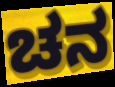
ಚನ